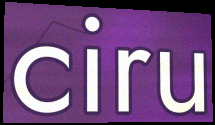
ciru